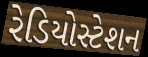
રેડિયોસ્ટેશન